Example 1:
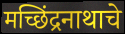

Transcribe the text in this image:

मच्छिंद्रनाथाचे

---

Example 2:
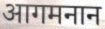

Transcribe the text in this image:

आगमनान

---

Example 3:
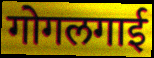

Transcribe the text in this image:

गोगलगाई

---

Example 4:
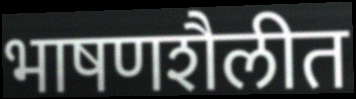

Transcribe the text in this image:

भाषणशैलीत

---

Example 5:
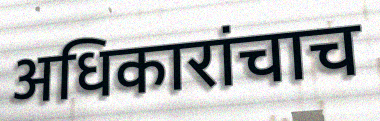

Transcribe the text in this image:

अधिकारांचाच